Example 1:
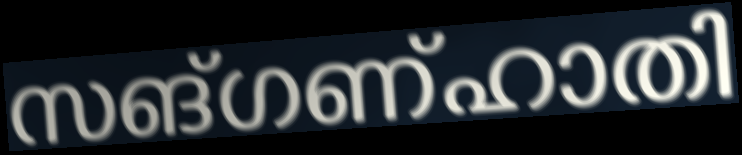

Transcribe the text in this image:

സങ്ഗണ്ഹാതി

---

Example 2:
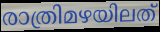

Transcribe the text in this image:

രാത്രിമഴയിലത്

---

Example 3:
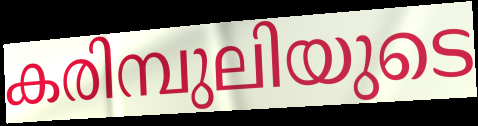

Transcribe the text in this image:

കരിമ്പുലിയുടെ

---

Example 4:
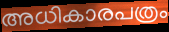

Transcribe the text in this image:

അധികാരപത്രം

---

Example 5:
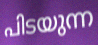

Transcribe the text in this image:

പിടയുന്ന